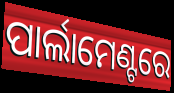
ପାର୍ଲାମେଣ୍ଟରେ